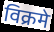
विक्रमे